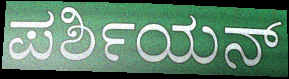
ಪರ್ಶಿಯನ್